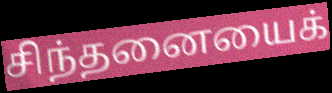
சிந்தனையைக்